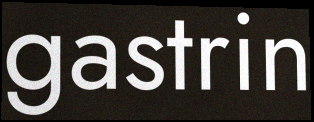
gastrin